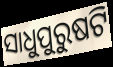
ସାଧୁପୁରୁଷଟି